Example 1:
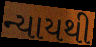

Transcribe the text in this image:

ન્યાયથી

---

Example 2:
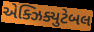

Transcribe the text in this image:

એક્ઝિક્યુટેબલ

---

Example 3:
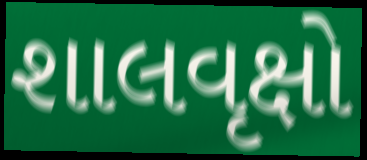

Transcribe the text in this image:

શાલવૃક્ષો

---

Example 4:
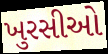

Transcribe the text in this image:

ખુરસીઓ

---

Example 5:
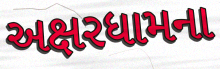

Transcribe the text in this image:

અક્ષરધામના